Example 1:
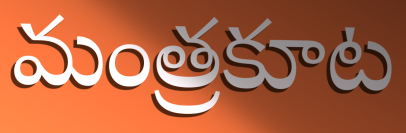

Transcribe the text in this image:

మంత్రకూట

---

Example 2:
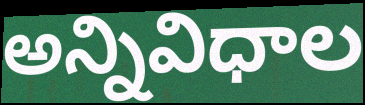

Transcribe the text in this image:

అన్నివిధాల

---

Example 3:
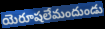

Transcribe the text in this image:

యెరూషలేమందుండు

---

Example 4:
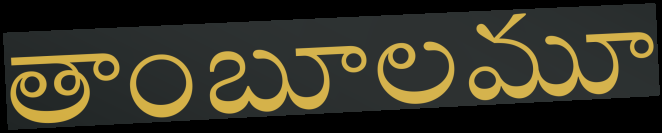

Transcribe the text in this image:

తాంబూలమూ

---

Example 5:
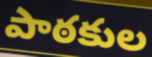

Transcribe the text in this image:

పాఠకుల